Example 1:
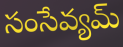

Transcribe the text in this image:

సంసేవ్యమ్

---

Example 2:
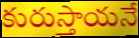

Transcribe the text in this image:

కురుస్తాయనే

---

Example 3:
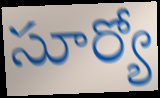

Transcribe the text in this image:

సూర్యో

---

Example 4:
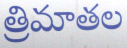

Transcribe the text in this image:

త్రిమాతల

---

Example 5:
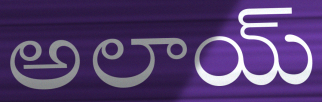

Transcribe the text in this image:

అలాయ్